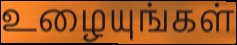
உழையுங்கள்